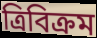
ত্রিবিক্রম